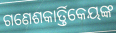
ଗଣେଶକାର୍ତ୍ତିକେୟଙ୍କ